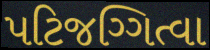
પટિજગ્ગિત્વા